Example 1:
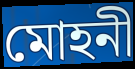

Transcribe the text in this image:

মোহনী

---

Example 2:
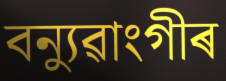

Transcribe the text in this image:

বন্যুৱাংগীৰ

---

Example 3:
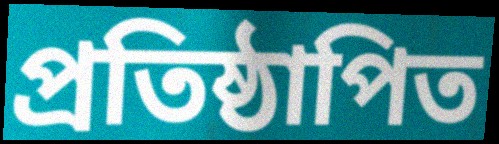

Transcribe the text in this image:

প্ৰতিষ্ঠাপিত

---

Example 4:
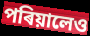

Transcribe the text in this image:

পৰিয়ালেও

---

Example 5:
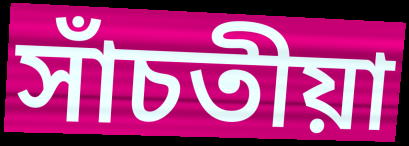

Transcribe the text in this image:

সাঁচতীয়া